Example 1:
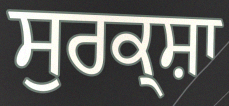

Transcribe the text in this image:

ਸੁਰਕ੍ਸ਼ਾ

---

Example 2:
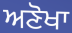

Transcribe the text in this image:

ਅਣੋਖਾ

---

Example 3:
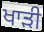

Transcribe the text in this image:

ਖਾਡ਼ੀ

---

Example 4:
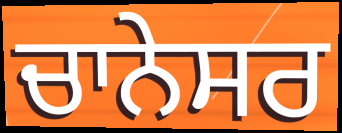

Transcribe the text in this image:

ਚਾਨੇਸਰ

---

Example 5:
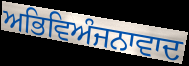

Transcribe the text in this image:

ਅਭਿਵਿਅੰਜਨਾਵਾਦ